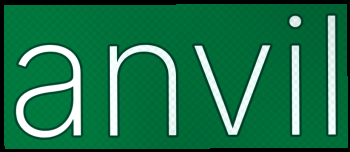
anvil